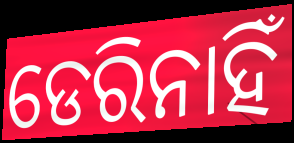
ଡେରିନାହିଁ